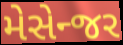
મેસેન્જર